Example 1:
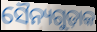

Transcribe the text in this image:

ସୈନ୍ୟଗୁଡ଼ାକ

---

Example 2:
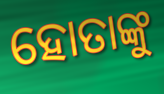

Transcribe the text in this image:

ହୋତାଙ୍କୁ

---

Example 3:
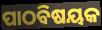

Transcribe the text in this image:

ପାଠବିଷୟକ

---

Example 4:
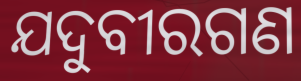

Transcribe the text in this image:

ଯଦୁବୀରଗଣ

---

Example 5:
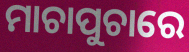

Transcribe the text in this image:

ମାଚାପୁଚାରେ